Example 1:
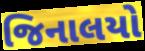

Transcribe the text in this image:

જિનાલયો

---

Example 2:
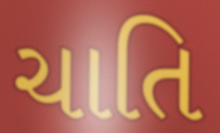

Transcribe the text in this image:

ચાતિ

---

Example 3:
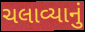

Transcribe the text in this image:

ચલાવ્યાનું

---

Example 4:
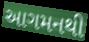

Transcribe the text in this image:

આગમનથી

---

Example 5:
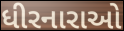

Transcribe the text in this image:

ધીરનારાઓ